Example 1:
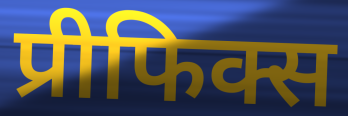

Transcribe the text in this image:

प्रीफिक्स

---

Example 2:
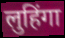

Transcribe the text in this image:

लुहिंगा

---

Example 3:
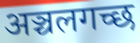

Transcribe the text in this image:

अञ्चलगच्छ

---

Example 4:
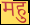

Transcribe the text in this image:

महु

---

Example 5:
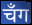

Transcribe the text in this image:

चँग